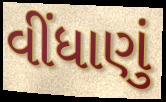
વીંધાણું